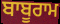
ਬਾਬੂਰਾਮ